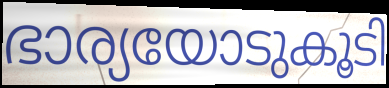
ഭാര്യയോടുകൂടി